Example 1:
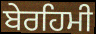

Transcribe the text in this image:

ਬੇਰਹਿਮੀ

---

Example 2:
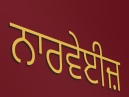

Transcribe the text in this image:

ਨਾਰਵੇਈਜ਼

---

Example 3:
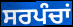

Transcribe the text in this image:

ਸਰਪੰਚਾਂ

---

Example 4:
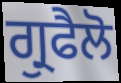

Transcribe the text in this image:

ਗ੍ਰੁਫੈਲੋ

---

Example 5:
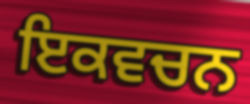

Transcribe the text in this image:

ਇਕਵਚਨ